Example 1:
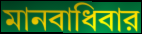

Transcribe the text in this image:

মানবাধিবার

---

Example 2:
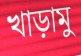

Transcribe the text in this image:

খাড়ামু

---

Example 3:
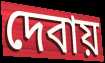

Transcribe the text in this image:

দেবায়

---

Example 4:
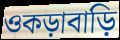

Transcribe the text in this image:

ওকড়াবাড়ি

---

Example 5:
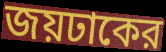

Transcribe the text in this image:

জয়ঢাকের